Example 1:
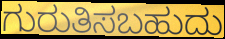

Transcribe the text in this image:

ಗುರುತಿಸಬಹುದು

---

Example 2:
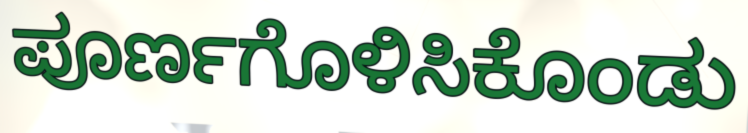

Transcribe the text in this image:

ಪೂರ್ಣಗೊಳಿಸಿಕೊಂಡು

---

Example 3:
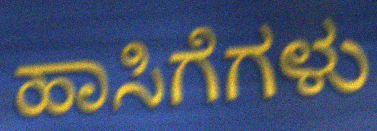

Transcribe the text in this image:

ಹಾಸಿಗೆಗಳು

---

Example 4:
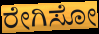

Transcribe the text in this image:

ರೇಗಿಸೋ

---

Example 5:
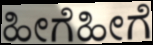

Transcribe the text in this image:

ಹೀಗೆಹೀಗೆ